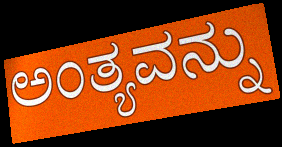
ಅಂತ್ಯವನ್ನು